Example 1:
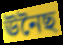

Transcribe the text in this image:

ঊনৈছ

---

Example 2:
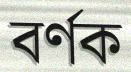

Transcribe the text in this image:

বৰ্ণক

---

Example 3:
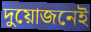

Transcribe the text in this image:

দুয়োজনেই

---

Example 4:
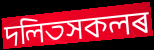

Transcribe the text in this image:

দলিতসকলৰ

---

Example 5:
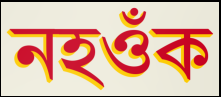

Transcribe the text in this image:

নহওঁক